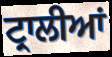
ਟ੍ਰਾਲੀਆਂ